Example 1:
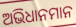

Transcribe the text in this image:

ଅଭିଧାନମାନ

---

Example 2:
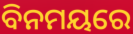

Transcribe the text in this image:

ବିନମୟରେ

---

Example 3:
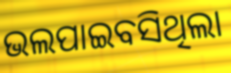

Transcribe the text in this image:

ଭଲପାଇବସିଥିଲା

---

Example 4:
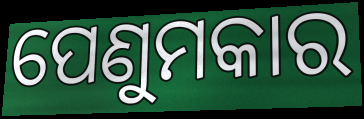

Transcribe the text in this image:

ପେଣୁମକାର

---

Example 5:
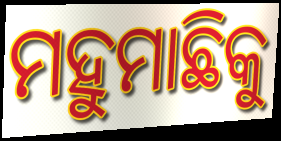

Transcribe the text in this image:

ମହୁମାଛିକୁ